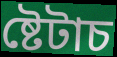
ষ্টেটাচ